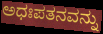
ಅಧಃಪತನವನ್ನು